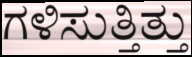
ಗಳಿಸುತ್ತಿತ್ತು